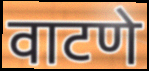
वाटणे